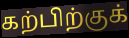
கற்பிற்குக்